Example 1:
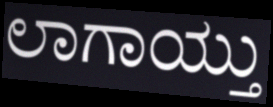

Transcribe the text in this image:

ಲಾಗಾಯ್ತು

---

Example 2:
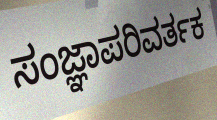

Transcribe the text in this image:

ಸಂಜ್ಞಾಪರಿವರ್ತಕ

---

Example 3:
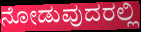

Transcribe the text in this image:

ನೋಡುವುದರಲ್ಲಿ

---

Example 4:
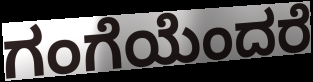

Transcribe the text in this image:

ಗಂಗೆಯೆಂದರೆ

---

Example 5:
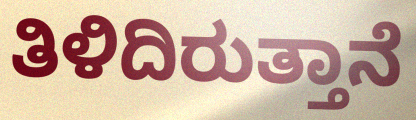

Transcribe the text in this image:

ತಿಳಿದಿರುತ್ತಾನೆ